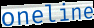
oneline